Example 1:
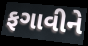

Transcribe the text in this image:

ફગાવીને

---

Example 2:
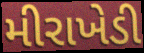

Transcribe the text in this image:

મીરાખેડી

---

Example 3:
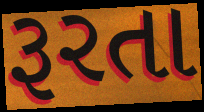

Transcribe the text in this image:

રૂરતા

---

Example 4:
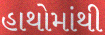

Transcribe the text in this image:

હાથોમાંથી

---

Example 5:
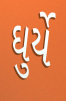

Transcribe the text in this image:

ઘુર્યે